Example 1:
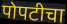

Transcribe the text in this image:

पोपटीचा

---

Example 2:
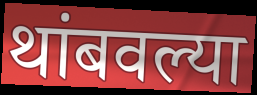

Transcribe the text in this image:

थांबवल्या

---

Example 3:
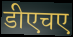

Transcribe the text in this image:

डीएचए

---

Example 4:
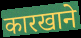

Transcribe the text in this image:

कारखाने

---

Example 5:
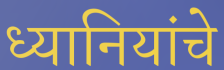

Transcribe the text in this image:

ध्यानियांचे